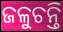
ଜଳୁଚନ୍ତି